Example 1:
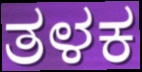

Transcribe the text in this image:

ತಳಕ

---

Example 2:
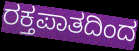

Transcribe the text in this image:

ರಕ್ತಪಾತದಿಂದ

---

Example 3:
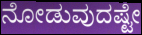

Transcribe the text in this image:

ನೋಡುವುದಷ್ಟೇ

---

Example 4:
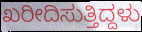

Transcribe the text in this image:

ಖರೀದಿಸುತ್ತಿದ್ದಳು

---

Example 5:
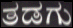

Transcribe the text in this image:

ತಡಗು